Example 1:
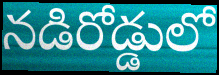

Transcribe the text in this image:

నడిరోడ్డులో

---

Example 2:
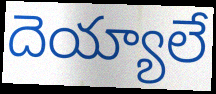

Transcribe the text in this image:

దెయ్యాలే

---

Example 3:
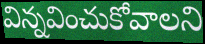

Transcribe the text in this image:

విన్నవించుకోవాలని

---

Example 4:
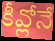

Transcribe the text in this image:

కీవ్లోనే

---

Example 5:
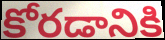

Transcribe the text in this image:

కోరడానికి